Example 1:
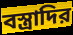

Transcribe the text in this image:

বস্ত্রাদির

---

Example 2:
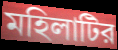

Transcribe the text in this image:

মহিলাটির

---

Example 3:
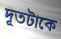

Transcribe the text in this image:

দূতটাকে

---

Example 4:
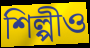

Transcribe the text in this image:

শিল্পীও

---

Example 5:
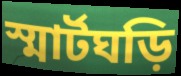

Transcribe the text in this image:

স্মার্টঘড়ি